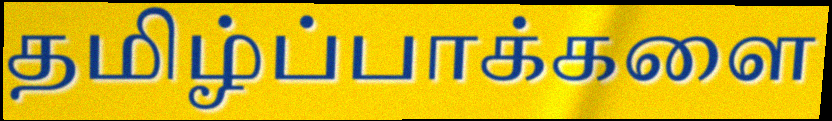
தமிழ்ப்பாக்களை